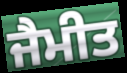
ਜੈਮੀਤ